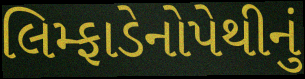
લિમ્ફાડેનોપેથીનું